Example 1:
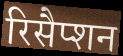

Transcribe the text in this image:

रिसैप्शन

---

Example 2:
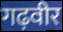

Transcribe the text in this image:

गढ़वीर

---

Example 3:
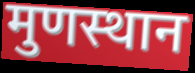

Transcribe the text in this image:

मुणस्थान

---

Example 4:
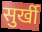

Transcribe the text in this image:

सुर्खी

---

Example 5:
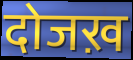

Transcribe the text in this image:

दोजख़